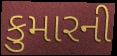
કુમારની